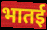
भातई